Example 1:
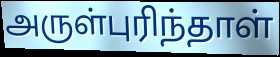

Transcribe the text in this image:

அருள்புரிந்தாள்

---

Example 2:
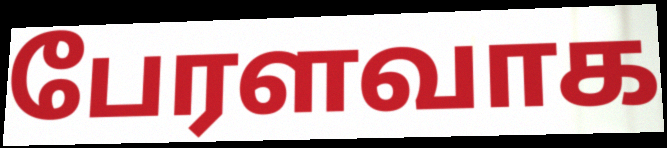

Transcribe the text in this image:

பேரளவாக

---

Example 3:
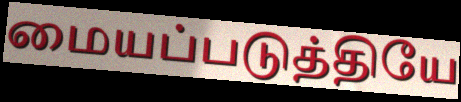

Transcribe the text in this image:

மையப்படுத்தியே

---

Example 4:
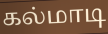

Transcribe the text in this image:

கல்மாடி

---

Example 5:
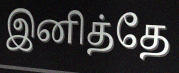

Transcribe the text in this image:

இனித்தே